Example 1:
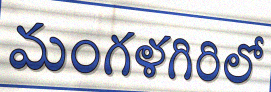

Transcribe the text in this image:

మంగళగిరిలో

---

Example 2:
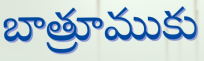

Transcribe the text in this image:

బాత్రూముకు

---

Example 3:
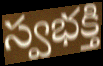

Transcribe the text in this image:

స్వభక్తి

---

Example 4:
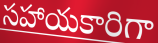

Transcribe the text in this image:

సహాయకారిగా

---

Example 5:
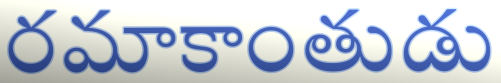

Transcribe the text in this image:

రమాకాంతుడు